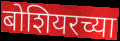
बोशियरच्या